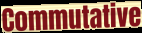
Commutative